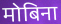
मोबिना